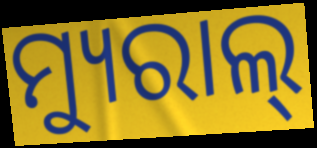
ମ୍ୟୁରାଲ୍